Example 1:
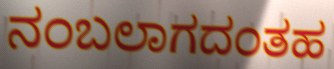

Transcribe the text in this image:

ನಂಬಲಾಗದಂತಹ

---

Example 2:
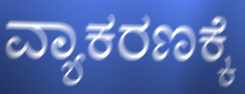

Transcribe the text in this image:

ವ್ಯಾಕರಣಕ್ಕೆ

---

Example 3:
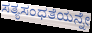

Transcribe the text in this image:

ಸತ್ಯಸಂಧತೆಯನ್ನೇ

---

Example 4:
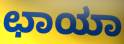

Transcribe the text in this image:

ಛಾಯಾ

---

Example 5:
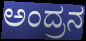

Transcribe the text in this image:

ಅಂದ್ರನ